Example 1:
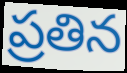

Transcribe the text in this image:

ప్రతిన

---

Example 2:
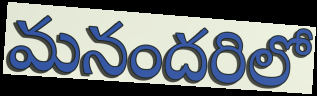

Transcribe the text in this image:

మనందరిలో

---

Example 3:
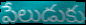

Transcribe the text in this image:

పేలుడుకు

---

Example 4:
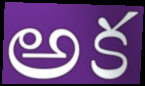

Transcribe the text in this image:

అక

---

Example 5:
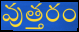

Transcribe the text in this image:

వుత్తరం